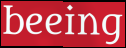
beeing